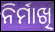
ନିର୍ମାଖି